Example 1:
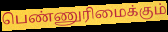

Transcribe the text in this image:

பெண்ணுரிமைக்கும்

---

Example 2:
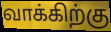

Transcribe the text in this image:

வாக்கிற்கு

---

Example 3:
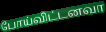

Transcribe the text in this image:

போய்விட்டனவா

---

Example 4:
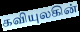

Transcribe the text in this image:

கவியுலகின்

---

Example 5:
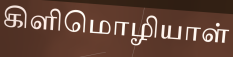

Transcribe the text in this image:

கிளிமொழியாள்